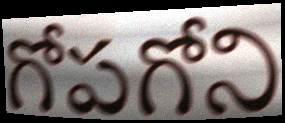
గోపగోని